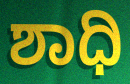
ಶಾಧಿ